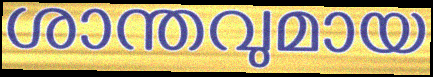
ശാന്തവുമായ